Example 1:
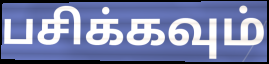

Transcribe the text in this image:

பசிக்கவும்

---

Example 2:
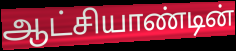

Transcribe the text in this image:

ஆட்சியாண்டின்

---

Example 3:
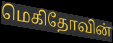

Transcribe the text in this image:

மெகிதோவின்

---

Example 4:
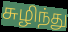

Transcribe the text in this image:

சுழிந்து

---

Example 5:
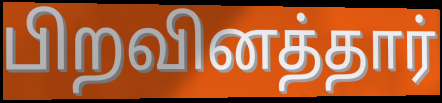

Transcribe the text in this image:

பிறவினத்தார்